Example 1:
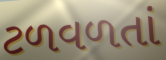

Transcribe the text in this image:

ટળવળતાં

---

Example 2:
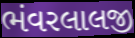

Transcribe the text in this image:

ભંવરલાલજી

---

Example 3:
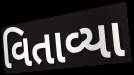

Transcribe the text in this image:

વિતાવ્યા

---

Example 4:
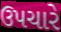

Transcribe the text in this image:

ઉપચારે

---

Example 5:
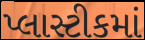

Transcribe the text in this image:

પ્લાસ્ટીકમાં